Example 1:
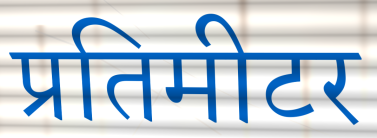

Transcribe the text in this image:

प्रतिमीटर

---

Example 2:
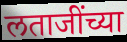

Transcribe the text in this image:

लताजींच्या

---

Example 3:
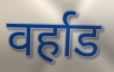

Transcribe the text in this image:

वर्हाड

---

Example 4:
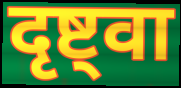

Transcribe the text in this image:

दृष्ट्वा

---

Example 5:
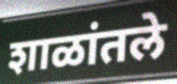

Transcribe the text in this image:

शाळांतले